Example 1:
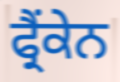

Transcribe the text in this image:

ਫ੍ਰੈਂਕੇਨ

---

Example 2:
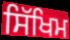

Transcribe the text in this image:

ਸਿੱਖਿਮ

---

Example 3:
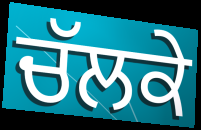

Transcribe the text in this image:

ਚੱਲਕੇ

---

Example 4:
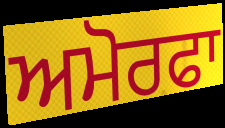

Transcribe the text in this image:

ਅਮੋਰਫਾ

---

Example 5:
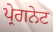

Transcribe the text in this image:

ਪ੍ਰੇਗਨੇਟ